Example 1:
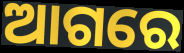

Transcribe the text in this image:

ଆଗରେ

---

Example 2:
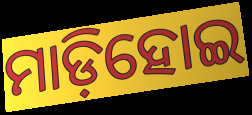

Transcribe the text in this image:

ମାଡ଼ିହୋଇ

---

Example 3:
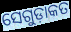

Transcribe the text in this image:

ସେଗୁଡ଼ାକତ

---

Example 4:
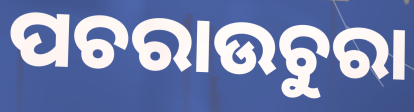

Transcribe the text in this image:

ପଚରାଉଚୁରା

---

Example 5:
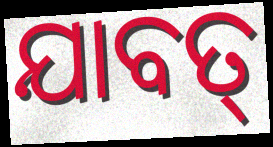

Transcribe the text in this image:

ଯାବତ୍